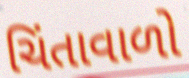
ચિંતાવાળો